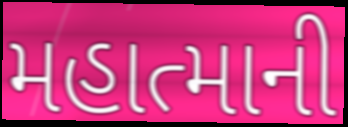
મહાત્માની